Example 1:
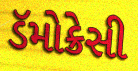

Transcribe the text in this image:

ડૅમોક્રેસી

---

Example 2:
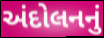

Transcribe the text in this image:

અંદોલનનું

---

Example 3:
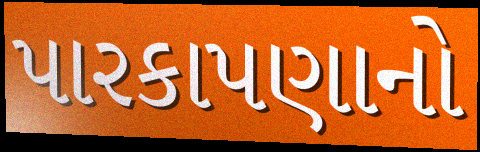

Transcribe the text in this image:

પારકાપણાનો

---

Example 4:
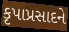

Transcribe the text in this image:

કૃપાપ્રસાદને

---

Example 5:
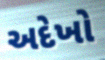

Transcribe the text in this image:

અદેખો